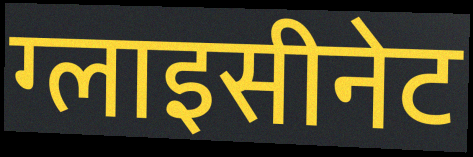
ग्लाइसीनेट